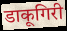
डाकूगिरी